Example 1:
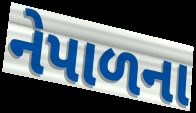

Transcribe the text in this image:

નેપાળના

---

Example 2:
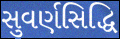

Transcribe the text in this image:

સુવર્ણસિદ્ધિ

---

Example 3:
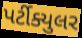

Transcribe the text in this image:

પર્ટીક્યુલર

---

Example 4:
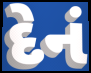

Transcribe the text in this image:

દેનં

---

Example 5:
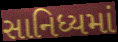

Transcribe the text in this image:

સાનિધ્યમાં